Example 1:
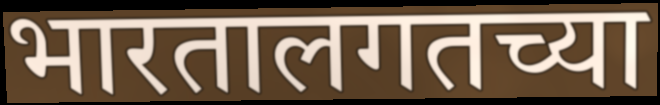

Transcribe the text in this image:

भारतालगतच्या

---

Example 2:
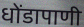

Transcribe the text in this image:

धोंडापाणी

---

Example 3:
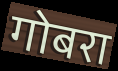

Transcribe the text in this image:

गोबरा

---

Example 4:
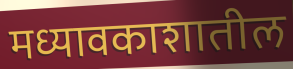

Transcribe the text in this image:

मध्यावकाशातील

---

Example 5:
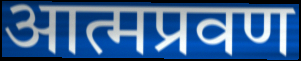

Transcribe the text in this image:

आत्मप्रवण